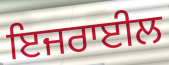
ਇਜਰਾਈਲ